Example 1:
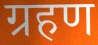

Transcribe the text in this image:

ग्रहण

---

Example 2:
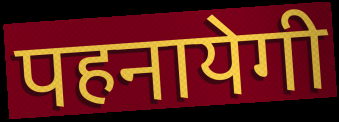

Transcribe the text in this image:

पहनायेगी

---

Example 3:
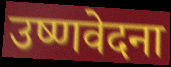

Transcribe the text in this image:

उष्णवेदना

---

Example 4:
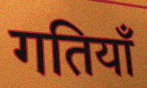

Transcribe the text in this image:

गतियाँ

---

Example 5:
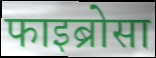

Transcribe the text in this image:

फाइब्रोसा